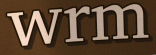
wrm